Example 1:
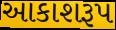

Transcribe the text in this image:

આકાશરૂપ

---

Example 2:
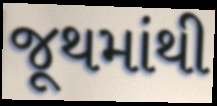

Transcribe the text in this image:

જૂથમાંથી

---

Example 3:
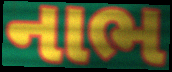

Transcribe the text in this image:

નાભ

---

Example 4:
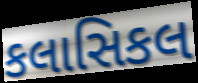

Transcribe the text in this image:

કલાસિકલ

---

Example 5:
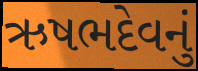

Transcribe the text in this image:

ઋષભદેવનું